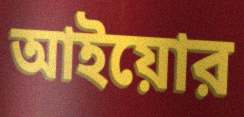
আইয়োর